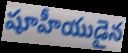
షూహీయుడైన